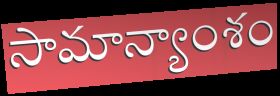
సామాన్యాంశం